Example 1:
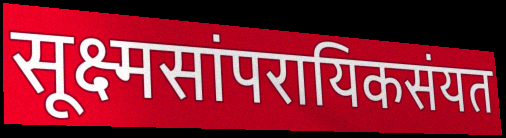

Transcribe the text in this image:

सूक्ष्मसांपरायिकसंयत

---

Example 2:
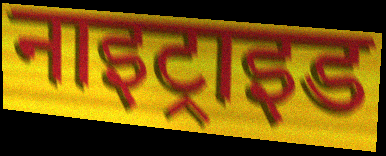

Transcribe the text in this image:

नाइट्राइड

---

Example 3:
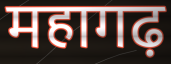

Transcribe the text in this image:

महागढ़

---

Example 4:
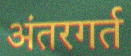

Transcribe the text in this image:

अंतरगर्त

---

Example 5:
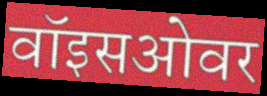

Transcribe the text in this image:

वॉइसओवर